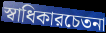
স্বাধিকারচেতনা